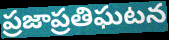
ప్రజాప్రతిఘటన